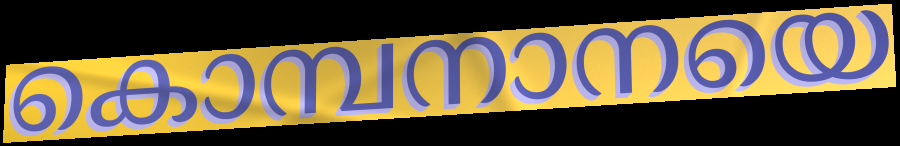
കൊമ്പനാനയെ